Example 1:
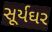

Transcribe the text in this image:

સૂર્યઘર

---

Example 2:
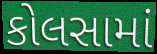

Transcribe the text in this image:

કોલસામાં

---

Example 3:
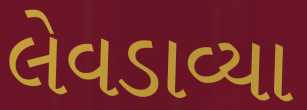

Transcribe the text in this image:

લેવડાવ્યા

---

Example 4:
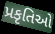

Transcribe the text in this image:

પ્રકૃતિઓ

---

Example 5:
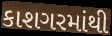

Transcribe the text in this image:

કાશગરમાંથી